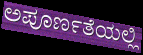
ಅಪೂರ್ಣತೆಯಲ್ಲಿ